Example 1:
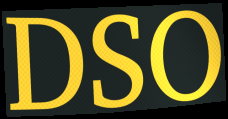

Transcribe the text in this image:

DSO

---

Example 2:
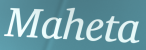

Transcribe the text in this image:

Maheta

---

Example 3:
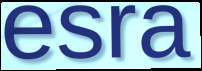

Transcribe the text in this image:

esra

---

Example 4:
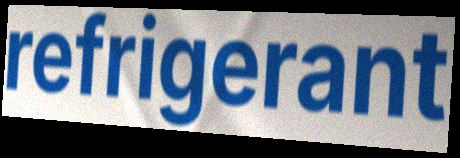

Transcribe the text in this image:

refrigerant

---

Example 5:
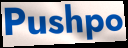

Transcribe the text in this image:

Pushpo